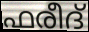
ഫരീദ്